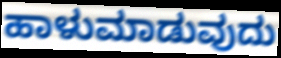
ಹಾಳುಮಾಡುವುದು